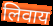
लिवाय